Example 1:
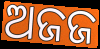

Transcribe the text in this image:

ଅଜଜ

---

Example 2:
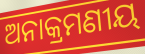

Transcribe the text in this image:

ଅନାକ୍ରମଣୀୟ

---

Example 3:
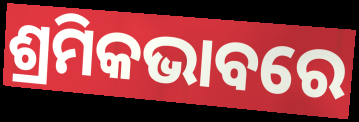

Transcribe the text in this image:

ଶ୍ରମିକଭାବରେ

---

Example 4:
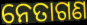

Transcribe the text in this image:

ନେତାଗଣ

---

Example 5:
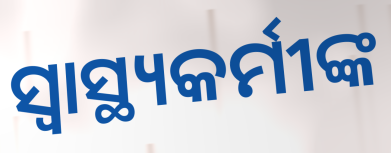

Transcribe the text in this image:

ସ୍ବାସ୍ଥ୍ୟକର୍ମୀଙ୍କ